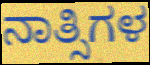
ನಾತ್ಸಿಗಳ